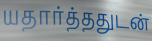
யதார்த்ததுடன்